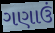
ગણાઉં